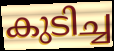
കുടിച്ച